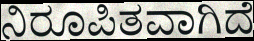
ನಿರೂಪಿತವಾಗಿದೆ